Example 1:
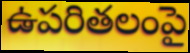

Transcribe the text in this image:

ఉపరితలంపై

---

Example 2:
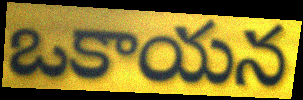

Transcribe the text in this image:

ఒకాయన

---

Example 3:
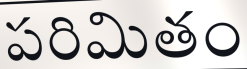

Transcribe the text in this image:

పరిమితం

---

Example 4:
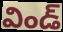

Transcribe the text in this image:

విండ్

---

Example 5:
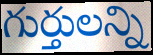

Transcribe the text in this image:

గుర్తులన్ని